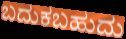
ಬದುಕಬಹುದು